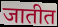
जातीत